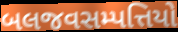
બલજવસમ્પત્તિયો